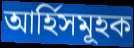
আৰ্হিসমূহক